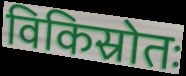
विकिस्रोतः